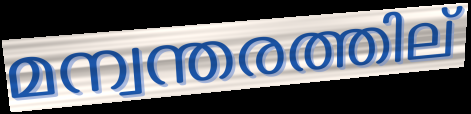
മന്വന്തരത്തില്